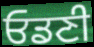
ਓਡਣੀ